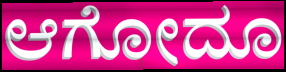
ಆಗೋದೂ